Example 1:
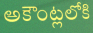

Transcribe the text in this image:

అకౌంట్లలోకి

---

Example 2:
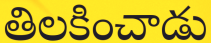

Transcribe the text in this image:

తిలకించాడు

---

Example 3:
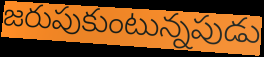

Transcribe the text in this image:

జరుపుకుంటున్నపుడు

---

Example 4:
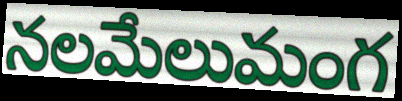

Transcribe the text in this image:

నలమేలుమంగ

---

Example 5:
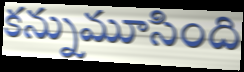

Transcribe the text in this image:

కన్నుమూసింది